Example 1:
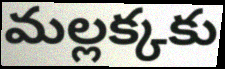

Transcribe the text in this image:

మల్లక్కకు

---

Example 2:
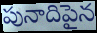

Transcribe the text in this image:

పునాదిపైన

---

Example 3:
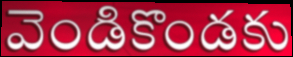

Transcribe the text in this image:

వెండికొండకు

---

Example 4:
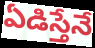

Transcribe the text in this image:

ఏడిస్తేనే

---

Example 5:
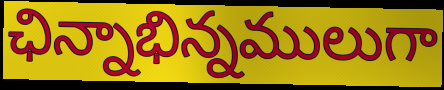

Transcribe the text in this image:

ఛిన్నాభిన్నములుగా